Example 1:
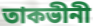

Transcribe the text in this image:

তাকভীনী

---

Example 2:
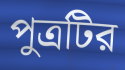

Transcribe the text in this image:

পুত্রটির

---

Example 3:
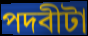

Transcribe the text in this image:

পদবীটা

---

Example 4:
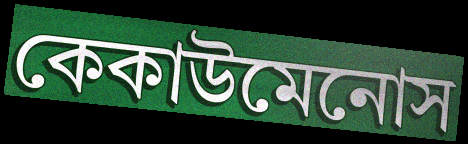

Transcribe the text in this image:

কেকাউমেনোস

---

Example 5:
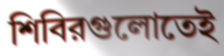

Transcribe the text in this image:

শিবিরগুলোতেই